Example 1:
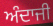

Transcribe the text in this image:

ਅੰਦਾਜੀ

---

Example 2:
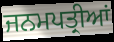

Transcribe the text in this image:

ਜਨਮਪਤ੍ਰੀਆਂ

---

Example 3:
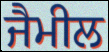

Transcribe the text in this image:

ਜੈਮੀਲ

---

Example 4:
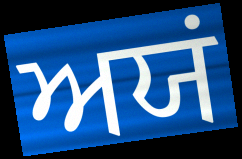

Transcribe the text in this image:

ਅਯਂ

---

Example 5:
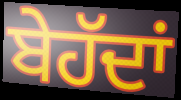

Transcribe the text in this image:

ਬੇਹੱਦਾਂ